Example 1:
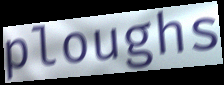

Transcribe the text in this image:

ploughs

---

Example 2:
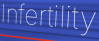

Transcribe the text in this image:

Infertility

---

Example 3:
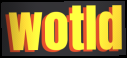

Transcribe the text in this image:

wotld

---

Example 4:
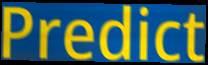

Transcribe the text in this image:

Predict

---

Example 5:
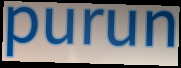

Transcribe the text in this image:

purun